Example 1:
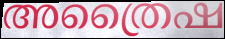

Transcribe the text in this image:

അത്രൈഷ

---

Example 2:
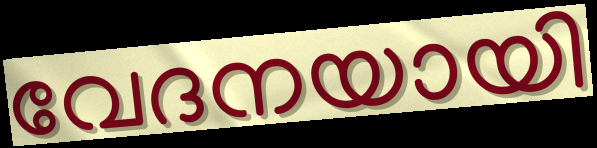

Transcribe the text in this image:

വേദനയായി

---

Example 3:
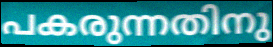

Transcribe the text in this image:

പകരുന്നതിനു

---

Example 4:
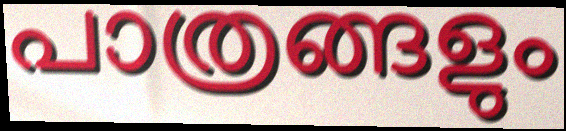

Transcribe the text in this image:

പാത്രങ്ങളും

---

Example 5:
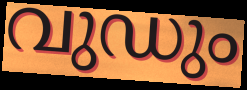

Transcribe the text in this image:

വുഡും